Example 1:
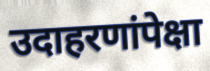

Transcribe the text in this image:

उदाहरणांपेक्षा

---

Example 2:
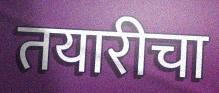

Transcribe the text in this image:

तयारीचा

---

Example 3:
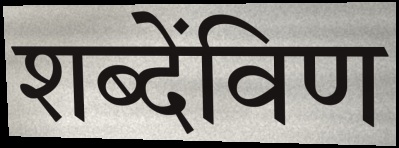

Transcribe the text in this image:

शब्देंविण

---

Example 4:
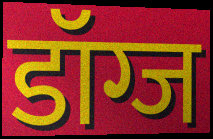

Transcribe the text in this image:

डॉग्ज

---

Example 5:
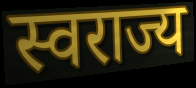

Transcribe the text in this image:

स्वराज्य